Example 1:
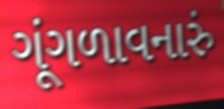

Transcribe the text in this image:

ગૂંગળાવનારું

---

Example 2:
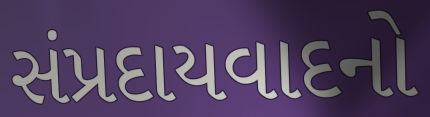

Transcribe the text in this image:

સંપ્રદાયવાદનો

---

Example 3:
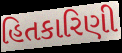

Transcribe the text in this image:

હિતકારિણી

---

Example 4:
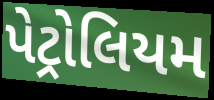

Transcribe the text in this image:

પેટ્રોલિયમ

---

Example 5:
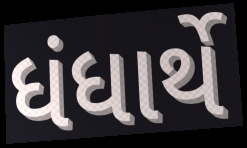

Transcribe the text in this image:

ધંધાર્થે